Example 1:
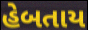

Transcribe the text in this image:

હેબતાય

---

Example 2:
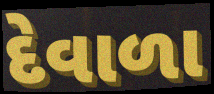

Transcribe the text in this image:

દેવાળા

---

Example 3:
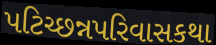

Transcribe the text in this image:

પટિચ્છન્નપરિવાસકથા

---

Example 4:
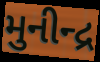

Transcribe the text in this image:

મુનીન્દ્ર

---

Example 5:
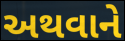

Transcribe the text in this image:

અથવાને